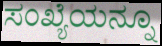
ಸಂಖ್ಯೆಯನ್ನೂ